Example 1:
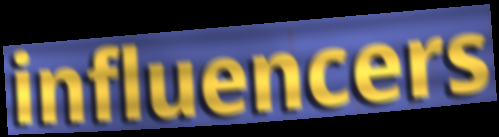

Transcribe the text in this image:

influencers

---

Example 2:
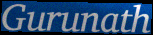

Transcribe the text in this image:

Gurunath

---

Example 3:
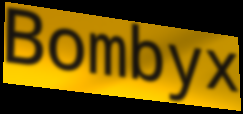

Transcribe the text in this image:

Bombyx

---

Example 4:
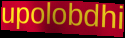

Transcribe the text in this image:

upolobdhi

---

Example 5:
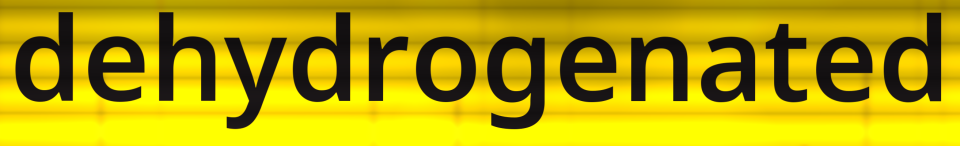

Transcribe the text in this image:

dehydrogenated